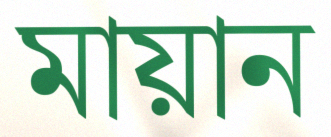
মায়ান